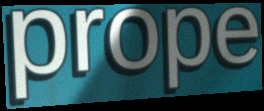
prope